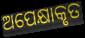
ଅପେକ୍ଷାକୃତ